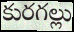
కురగల్లు